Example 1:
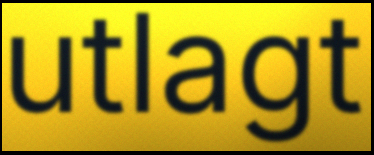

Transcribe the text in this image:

utlagt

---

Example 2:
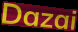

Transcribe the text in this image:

Dazai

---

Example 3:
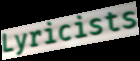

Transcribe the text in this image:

Lyricists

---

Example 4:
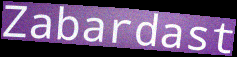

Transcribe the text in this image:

Zabardast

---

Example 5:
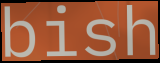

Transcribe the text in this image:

bish